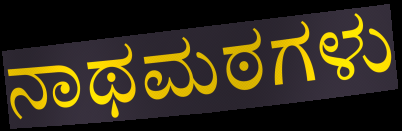
ನಾಥಮಠಗಳು